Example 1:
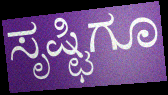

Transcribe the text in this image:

ಸೃಷ್ಟಿಗೂ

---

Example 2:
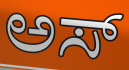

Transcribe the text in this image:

ಅಸ್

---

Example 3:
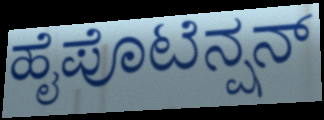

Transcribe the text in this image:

ಹೈಪೊಟೆನ್ಷನ್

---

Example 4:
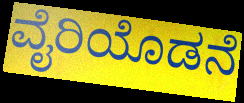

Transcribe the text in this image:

ವೈರಿಯೊಡನೆ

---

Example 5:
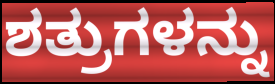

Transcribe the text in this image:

ಶತ್ರುಗಳನ್ನು